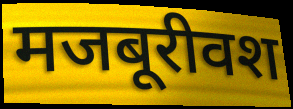
मजबूरीवश